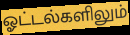
ஓட்டல்களிலும்